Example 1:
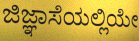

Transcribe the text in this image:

ಜಿಜ್ಞಾಸೆಯಲ್ಲಿಯೇ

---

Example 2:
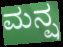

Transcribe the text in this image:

ಮನ್ಷ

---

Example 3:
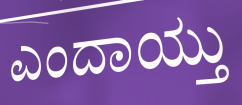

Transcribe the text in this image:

ಎಂದಾಯ್ತು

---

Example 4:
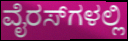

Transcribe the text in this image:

ವೈರಸ್‌ಗಳಲ್ಲಿ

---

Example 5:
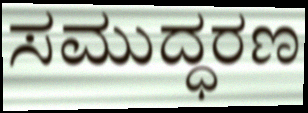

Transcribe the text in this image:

ಸಮುದ್ಧರಣ